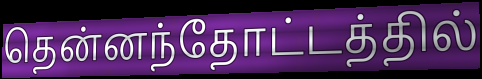
தென்னந்தோட்டத்தில்